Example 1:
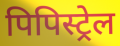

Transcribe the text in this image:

पिपिस्ट्रेल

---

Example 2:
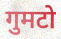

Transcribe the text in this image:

गुमटो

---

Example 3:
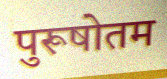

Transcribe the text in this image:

पुरूषोतम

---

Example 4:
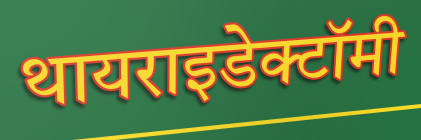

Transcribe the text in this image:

थायराइडेक्टॉमी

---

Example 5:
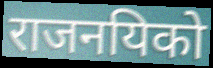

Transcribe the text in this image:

राजनयिको